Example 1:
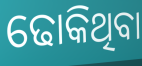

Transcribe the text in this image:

ଢୋକିଥିବା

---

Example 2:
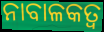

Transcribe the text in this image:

ନାବାଳକତ୍ଵ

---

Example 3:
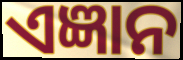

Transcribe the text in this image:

ଏଜ୍ଞାନ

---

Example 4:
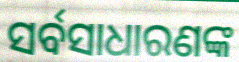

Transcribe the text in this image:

ସର୍ବସାଧାରଣଙ୍କ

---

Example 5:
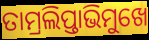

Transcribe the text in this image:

ତାମ୍ରଲିପ୍ତାଭିମୁଖେ